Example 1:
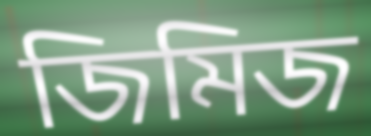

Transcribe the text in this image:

জিমিজ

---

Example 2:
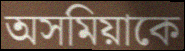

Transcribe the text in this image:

অসমিয়াকে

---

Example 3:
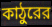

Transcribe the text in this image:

কাঠুরের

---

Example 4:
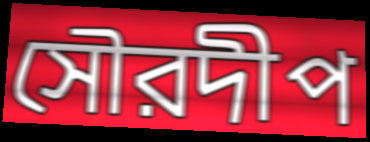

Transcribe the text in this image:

সৌরদীপ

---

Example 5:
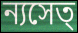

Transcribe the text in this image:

ন্যসেত্